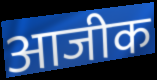
आजीक